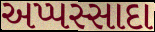
અપ્પસ્સાદા